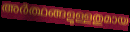
അർത്ഥങ്ങളുള്ളതുമായ